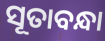
ସୂତାବନ୍ଧା